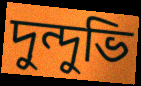
দুন্দুভি